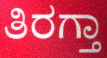
ತಿರಗ್ತಾ